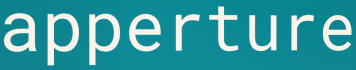
apperture